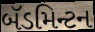
બૅડમિન્ટન